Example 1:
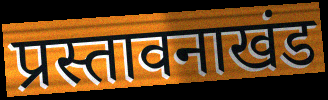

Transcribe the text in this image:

प्रस्तावनाखंड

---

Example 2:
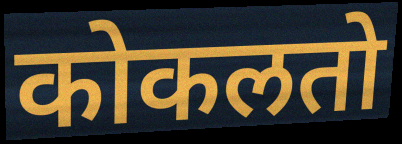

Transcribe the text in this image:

कोकलतो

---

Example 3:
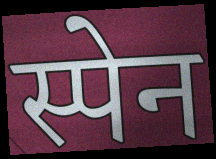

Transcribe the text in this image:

स्पेन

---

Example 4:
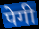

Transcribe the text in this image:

पेगी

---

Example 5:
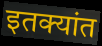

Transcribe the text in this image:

इतक्यांत